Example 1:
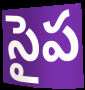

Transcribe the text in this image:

సైప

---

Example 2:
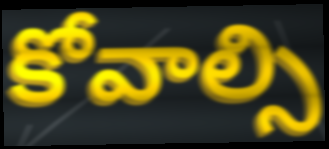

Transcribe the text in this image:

కోవాల్సి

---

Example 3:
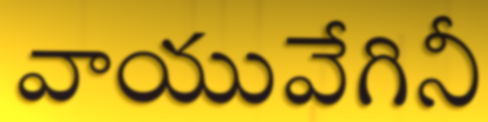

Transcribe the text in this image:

వాయువేగినీ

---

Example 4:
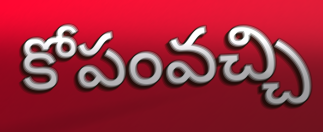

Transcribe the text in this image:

కోపంవచ్చి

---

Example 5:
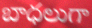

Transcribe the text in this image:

బాధలుగా